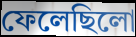
ফেলেছিলো